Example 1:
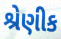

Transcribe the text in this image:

શ્રેણીક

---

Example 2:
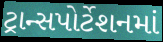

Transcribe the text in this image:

ટ્રાન્સપોર્ટેશનમાં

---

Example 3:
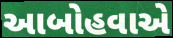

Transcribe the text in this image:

આબોહવાએ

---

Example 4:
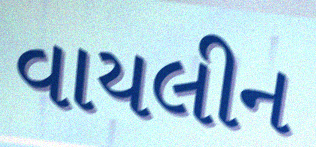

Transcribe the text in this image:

વાયલીન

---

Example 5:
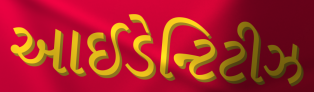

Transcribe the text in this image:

આઈડેન્ટિટીઝ